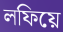
লফিয়ে